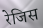
रेजिस